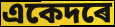
একেদৰে